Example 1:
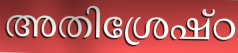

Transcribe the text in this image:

അതിശ്രേഷ്ഠ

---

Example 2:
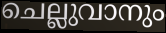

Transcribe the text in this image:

ചെല്ലുവാനും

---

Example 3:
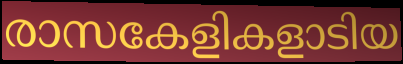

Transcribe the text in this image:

രാസകേളികളാടിയ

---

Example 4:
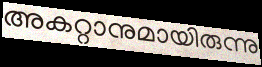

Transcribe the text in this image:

അകറ്റാനുമായിരുന്നു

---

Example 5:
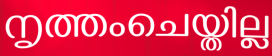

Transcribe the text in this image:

നൃത്തംചെയ്തില്ല